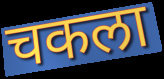
चकला